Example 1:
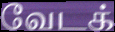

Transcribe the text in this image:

வேடக்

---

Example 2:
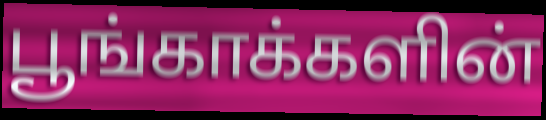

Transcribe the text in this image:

பூங்காக்களின்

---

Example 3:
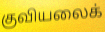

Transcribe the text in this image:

குவியலைக்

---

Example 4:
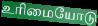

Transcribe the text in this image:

உரிமையோடு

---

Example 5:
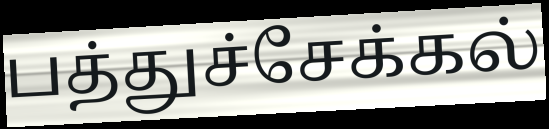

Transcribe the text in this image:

பத்துச்சேக்கல்